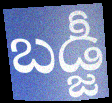
బడ్జీ